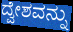
ದ್ವೇಶವನ್ನು